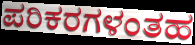
ಪರಿಕರಗಳಂತಹ